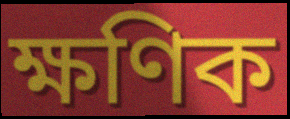
ক্ষণিক